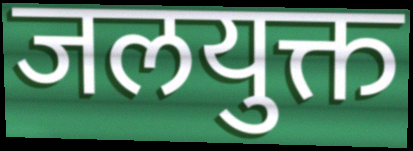
जलयुक्त